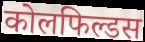
कोलफिल्डस